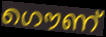
ഗൌണ്